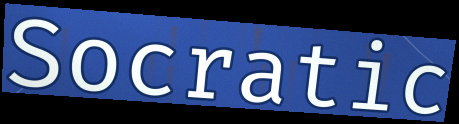
Socratic